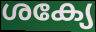
ശക്യേ